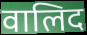
वालिद